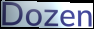
Dozen